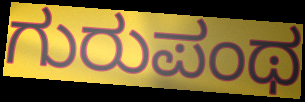
ಗುರುಪಂಥ